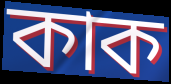
কাক